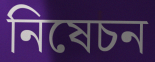
নিষেচন